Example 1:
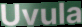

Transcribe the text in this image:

Uvula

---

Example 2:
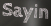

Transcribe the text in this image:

Sayin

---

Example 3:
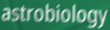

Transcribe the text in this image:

astrobiology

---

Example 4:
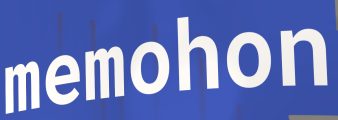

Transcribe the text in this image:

memohon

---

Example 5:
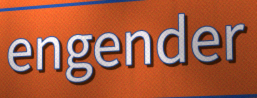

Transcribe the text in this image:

engender